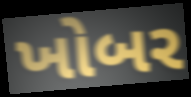
ખોબર